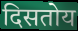
दिसतोय